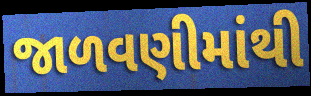
જાળવણીમાંથી